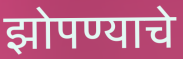
झोपण्याचे